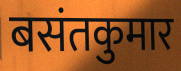
बसंतकुमार